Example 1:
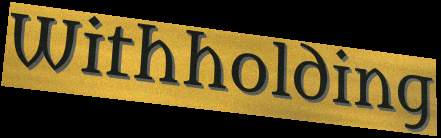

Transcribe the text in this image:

Withholding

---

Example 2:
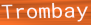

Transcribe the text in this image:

Trombay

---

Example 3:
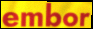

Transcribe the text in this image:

embor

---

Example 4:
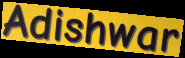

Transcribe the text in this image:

Adishwar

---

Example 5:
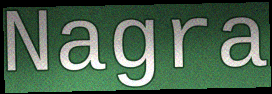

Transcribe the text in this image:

Nagra